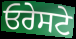
ਓਰੇਸਟੇ